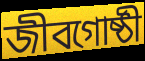
জীবগোষ্ঠী